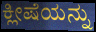
ಕ್ಲೀಷೆಯನ್ನು